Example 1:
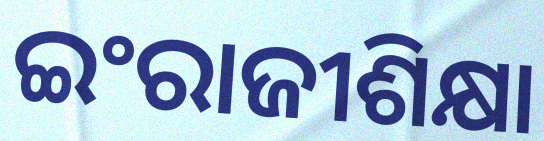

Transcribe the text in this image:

ଇଂରାଜୀଶିକ୍ଷା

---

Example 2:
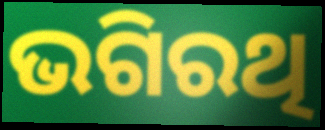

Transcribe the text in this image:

ଭଗିରଥି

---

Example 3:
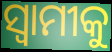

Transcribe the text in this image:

ସ୍ୱାମୀକୁ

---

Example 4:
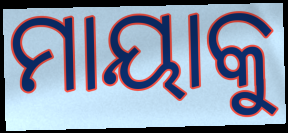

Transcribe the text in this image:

ମାୟାକୁ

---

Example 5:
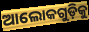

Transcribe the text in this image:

ଆଲୋକଗୁଡ଼ିକୁ